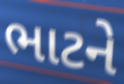
ભાટને